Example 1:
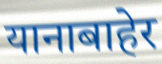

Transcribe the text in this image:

यानाबाहेर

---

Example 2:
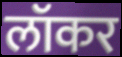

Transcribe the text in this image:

लॉकर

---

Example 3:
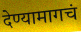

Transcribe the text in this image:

देण्यामागचं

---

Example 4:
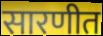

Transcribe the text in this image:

सारणीत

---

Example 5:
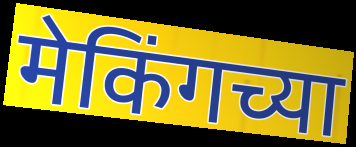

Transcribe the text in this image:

मेकिंगच्या